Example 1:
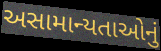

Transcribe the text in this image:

અસામાન્યતાઓનું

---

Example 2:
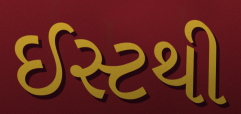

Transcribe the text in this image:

ઈસ્ટથી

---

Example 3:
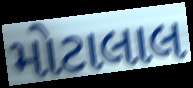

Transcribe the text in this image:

મોટાલાલ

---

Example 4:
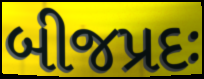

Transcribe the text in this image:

બીજપ્રદઃ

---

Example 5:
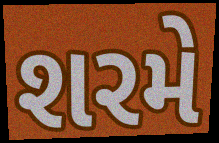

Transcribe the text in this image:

શરમે